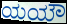
ಯಯೌ